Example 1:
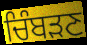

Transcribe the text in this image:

ਚਿੰਬੜਣ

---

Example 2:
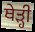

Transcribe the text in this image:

ਥੇੜ੍ਹੀ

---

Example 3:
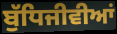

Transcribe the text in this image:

ਬੁੱਧਿਜੀਵੀਆਂ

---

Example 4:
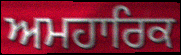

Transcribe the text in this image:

ਅਮਹਾਰਿਕ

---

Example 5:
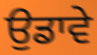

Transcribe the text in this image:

ਉਡਾਵੇ